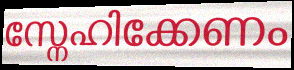
സ്നേഹിക്കേണം